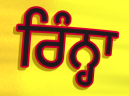
ਰਿੰਨ੍ਹਾ